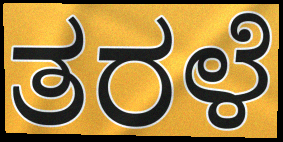
ತರಳೆ